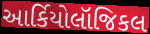
આર્કિયોલૉજિકલ